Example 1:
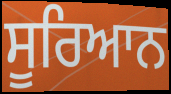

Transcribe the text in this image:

ਸੂਰਿਆਨ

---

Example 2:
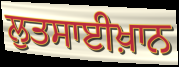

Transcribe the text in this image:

ਲੁਤਸਾਈਖ਼ਾਨ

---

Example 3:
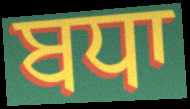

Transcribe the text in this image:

ਬਧਾ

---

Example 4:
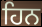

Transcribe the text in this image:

ਹਿਨ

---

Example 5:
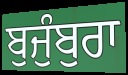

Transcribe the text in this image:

ਬੁਜੁੰਬੁਰਾ